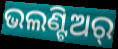
ଭଲଣ୍ଟିଅର୍